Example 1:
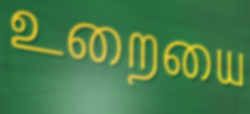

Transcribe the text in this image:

உறையை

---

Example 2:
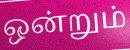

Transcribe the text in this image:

ஒன்றும்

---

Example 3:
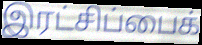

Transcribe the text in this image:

இரட்சிப்பைக்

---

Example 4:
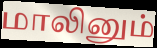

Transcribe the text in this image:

மாலினும்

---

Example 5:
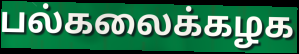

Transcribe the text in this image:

பல்கலைக்கழக